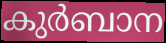
കുർബാന